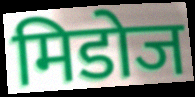
मिडोज